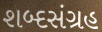
શબ્દસંગ્રહ